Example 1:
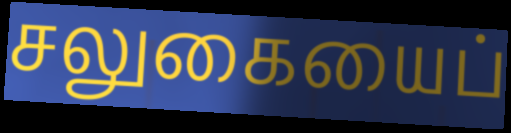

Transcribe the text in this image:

சலுகையைப்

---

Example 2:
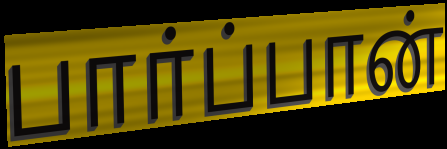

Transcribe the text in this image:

பார்ப்பான்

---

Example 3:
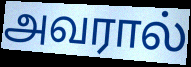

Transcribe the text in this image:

அவரால்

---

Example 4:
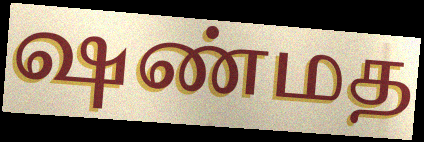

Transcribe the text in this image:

ஷண்மத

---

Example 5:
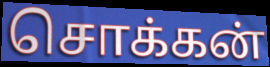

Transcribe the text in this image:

சொக்கன்